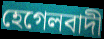
হেগেলবাদী